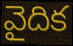
వైదిక